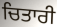
ਚਿਤਾਰੀ